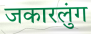
जकारलुंग